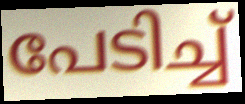
പേടിച്ച്